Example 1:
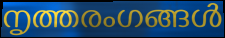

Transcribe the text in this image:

നൃത്തരംഗങ്ങൾ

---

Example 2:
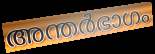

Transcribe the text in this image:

അന്തർഭാഗം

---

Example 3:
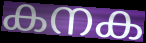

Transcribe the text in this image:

കനക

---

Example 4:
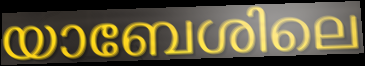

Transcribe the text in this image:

യാബേശിലെ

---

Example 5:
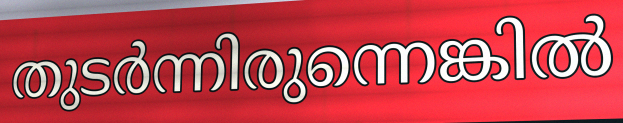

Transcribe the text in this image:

തുടർന്നിരുന്നെങ്കിൽ